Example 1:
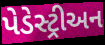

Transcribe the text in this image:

પેડેસ્ટ્રીઅન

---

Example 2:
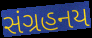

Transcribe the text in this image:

સંગ્રહનય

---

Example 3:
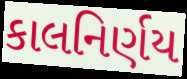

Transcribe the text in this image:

કાલનિર્ણય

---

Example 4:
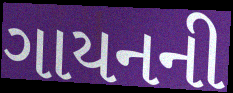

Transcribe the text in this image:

ગાયનની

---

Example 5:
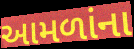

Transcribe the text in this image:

આમળાંના